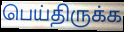
பெய்திருக்க